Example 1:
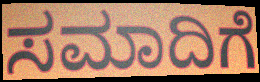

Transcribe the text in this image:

ಸಮಾದಿಗೆ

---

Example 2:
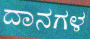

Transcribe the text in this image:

ದಾನಗಳ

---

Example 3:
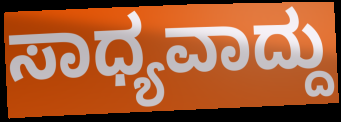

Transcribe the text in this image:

ಸಾಧ್ಯವಾದ್ದು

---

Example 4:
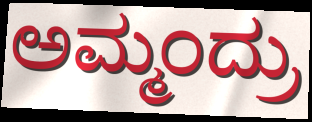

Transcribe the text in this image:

ಅಮ್ಮಂದ್ರು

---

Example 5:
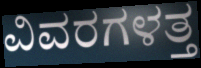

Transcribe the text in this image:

ವಿವರಗಳತ್ತ